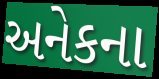
અનેકના